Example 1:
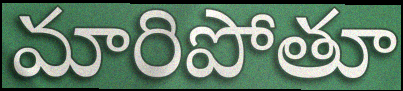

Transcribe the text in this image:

మారిపోతూ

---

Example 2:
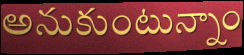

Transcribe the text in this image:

అనుకుంటున్నాం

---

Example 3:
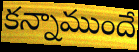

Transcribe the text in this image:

కన్నాముందే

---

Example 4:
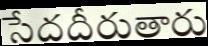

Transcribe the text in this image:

సేదదీరుతారు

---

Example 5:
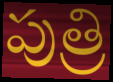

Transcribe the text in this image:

పుత్రి